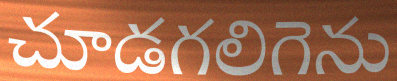
చూడగలిగెను